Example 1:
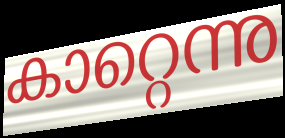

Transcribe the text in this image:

കാറ്റെന്നു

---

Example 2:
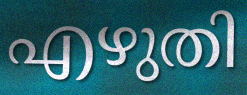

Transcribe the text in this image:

എഴുതി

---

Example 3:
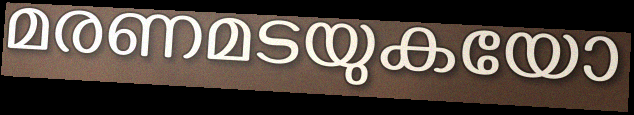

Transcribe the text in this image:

മരണമടയുകയോ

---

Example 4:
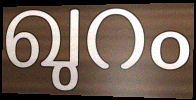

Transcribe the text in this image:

ഖുറം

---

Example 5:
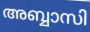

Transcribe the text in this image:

അബ്ബാസി